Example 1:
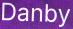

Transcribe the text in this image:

Danby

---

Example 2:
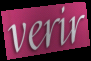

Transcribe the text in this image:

verir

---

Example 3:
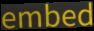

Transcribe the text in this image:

embed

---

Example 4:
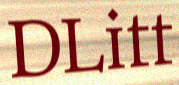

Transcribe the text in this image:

DLitt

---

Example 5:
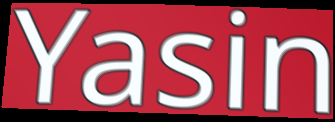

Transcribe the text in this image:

Yasin